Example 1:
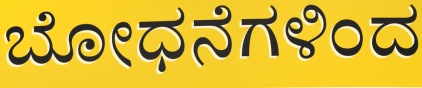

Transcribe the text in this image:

ಬೋಧನೆಗಳಿಂದ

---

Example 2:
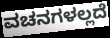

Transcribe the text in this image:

ವಚನಗಳಲ್ಲದೆ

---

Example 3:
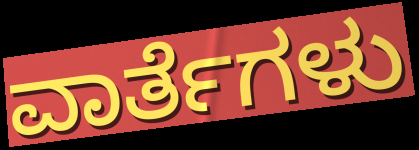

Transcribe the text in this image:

ವಾರ್ತೆಗಳು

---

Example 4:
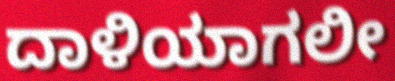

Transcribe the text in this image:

ದಾಳಿಯಾಗಲೀ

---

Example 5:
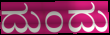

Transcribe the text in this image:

ದುಂದು